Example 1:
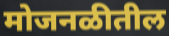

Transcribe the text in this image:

मोजनळीतील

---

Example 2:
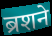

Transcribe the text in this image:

ब्रशने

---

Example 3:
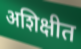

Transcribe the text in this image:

अशिक्षीत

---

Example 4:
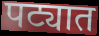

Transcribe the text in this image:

पट्यात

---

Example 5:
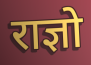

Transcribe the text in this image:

राज्ञो